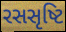
રસસૃષ્ટિ